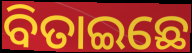
ବିତାଇଛେ